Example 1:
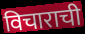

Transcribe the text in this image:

विचाराची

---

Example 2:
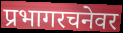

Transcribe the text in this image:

प्रभागरचनेवर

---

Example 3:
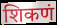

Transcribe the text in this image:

शिकणं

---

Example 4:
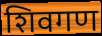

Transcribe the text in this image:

शिवगण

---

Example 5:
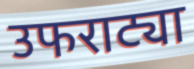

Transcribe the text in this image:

उफराट्या